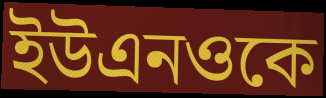
ইউএনওকে